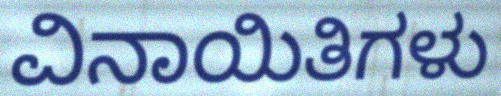
ವಿನಾಯಿತಿಗಳು